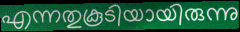
എന്നതുകൂടിയായിരുന്നു